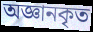
অজ্ঞানকৃত